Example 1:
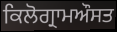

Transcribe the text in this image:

ਕਿਲੋਗ੍ਰਾਮਔਸਤ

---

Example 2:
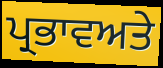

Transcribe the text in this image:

ਪ੍ਰਭਾਵਅਤੇ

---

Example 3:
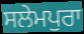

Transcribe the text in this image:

ਸਲੇਮਪੁਰਾ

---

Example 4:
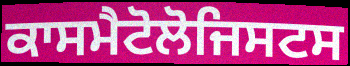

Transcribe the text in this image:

ਕਾਸਮੈਟੋਲੋਜਿਸਟਸ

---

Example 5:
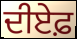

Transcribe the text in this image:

ਦੀਏਫ਼